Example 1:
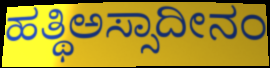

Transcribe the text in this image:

ಹತ್ಥಿಅಸ್ಸಾದೀನಂ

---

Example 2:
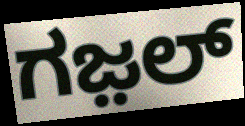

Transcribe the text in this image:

ಗಜ಼ಲ್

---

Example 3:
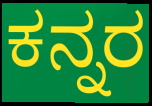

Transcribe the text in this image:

ಕನ್ನರ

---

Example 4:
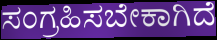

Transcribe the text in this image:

ಸಂಗ್ರಹಿಸಬೇಕಾಗಿದೆ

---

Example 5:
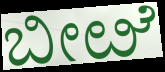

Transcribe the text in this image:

ಬೀೞೆ